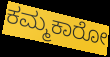
ಕಮ್ಮಕಾರೋ